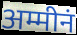
अम्मीनं